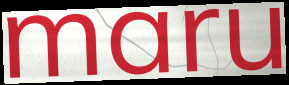
maru